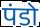
पंडो